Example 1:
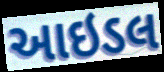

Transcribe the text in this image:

આઇડલ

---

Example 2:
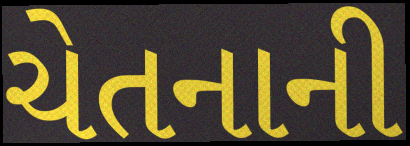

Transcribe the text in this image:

ચેતનાની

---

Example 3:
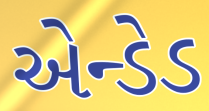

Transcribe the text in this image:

એન્ડેડ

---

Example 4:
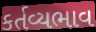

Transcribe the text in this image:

કર્તવ્યભાવ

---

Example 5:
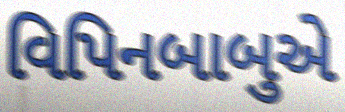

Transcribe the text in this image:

વિપિનબાબુએ